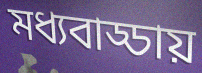
মধ্যবাড্ডায়